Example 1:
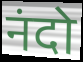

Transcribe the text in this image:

नंदो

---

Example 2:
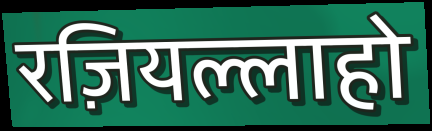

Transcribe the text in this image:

रज़ियल्लाहो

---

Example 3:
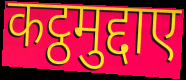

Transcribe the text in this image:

कट्ठमुद्दाए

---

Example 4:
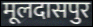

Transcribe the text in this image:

मूलदासपुर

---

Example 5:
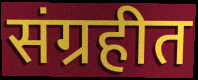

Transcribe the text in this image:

संग्रहीत